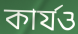
কাৰ্যও